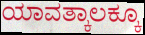
ಯಾವತ್ಕಾಲಕ್ಕೂ